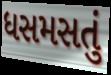
ધસમસતું